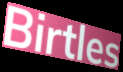
Birtles